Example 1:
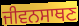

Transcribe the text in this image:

ਜੀਵਨਸਾਥਣ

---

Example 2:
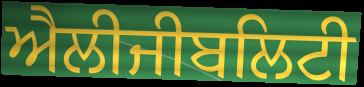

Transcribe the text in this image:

ਐਲੀਜੀਬਲਿਟੀ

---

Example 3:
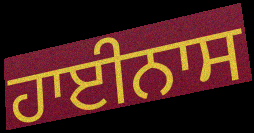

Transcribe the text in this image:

ਹਾਈਨਾਸ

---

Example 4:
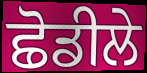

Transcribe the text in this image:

ਛੋਡੀਲੇ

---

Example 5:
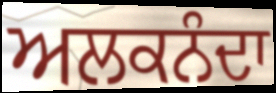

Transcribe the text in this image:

ਅਲਕਨੰਦਾ